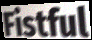
Fistful